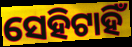
ସେହିଟାହିଁ